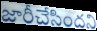
జారీచేసిందని